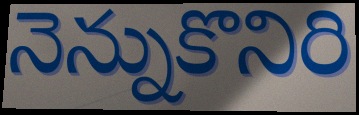
నెన్నుకొనిరి